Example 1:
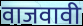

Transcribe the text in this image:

वाजवावी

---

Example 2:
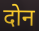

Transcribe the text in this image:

दोन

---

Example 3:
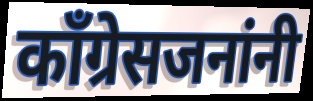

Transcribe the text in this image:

काँग्रेसजनांनी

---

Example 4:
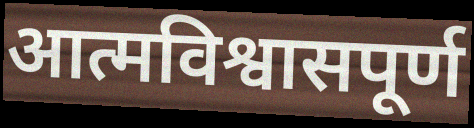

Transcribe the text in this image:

आत्मविश्वासपूर्ण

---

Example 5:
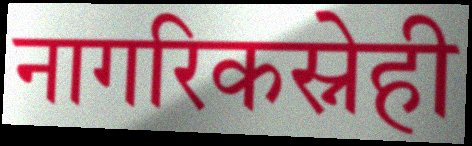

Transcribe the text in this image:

नागरिकस्नेही